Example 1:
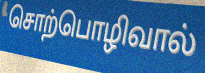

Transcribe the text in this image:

சொற்பொழிவால்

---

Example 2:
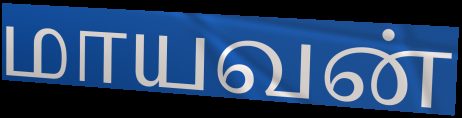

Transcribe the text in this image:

மாயவன்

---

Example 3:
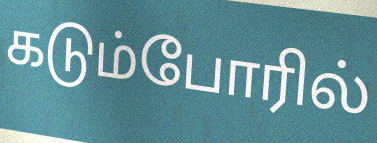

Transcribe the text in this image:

கடும்போரில்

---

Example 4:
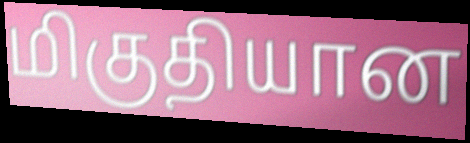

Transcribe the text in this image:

மிகுதியான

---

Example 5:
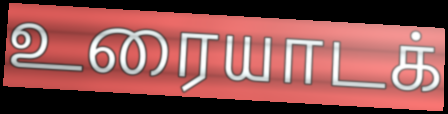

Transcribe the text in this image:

உரையாடக்